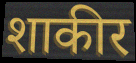
शाकीर